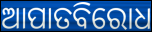
ଆପାତବିରୋଧ